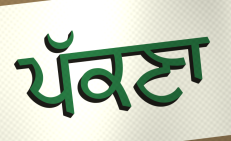
ਪੱਕਣਾ